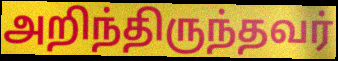
அறிந்திருந்தவர்